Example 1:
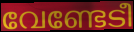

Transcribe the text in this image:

വേണ്ടേടീ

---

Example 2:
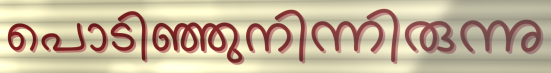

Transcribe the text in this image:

പൊടിഞ്ഞുനിന്നിരുന്നു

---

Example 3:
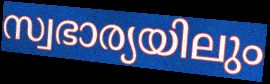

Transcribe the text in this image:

സ്വഭാര്യയിലും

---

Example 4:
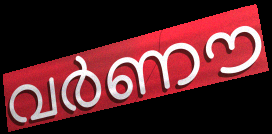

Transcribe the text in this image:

വർണൗ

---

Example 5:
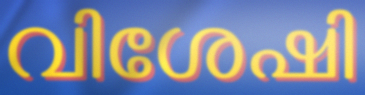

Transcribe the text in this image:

വിശേഷി